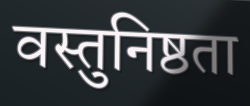
वस्तुनिष्ठता